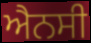
ਐਨਸੀ